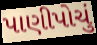
પાણીપોચું